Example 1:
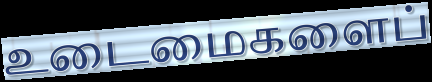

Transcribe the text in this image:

உடைமைகளைப்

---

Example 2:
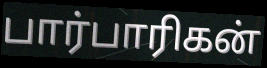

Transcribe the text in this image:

பார்பாரிகன்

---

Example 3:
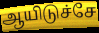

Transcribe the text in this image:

ஆயிடுச்சே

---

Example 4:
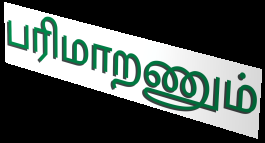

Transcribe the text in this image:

பரிமாறணும்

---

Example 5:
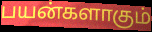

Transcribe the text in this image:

பயன்களாகும்